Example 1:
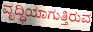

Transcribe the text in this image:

ವೃದ್ಧಿಯಾಗುತ್ತಿರುವ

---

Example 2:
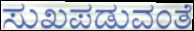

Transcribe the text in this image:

ಸುಖಪಡುವಂತೆ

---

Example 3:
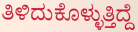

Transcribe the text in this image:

ತಿಳಿದುಕೊಳ್ಳುತ್ತಿದ್ದೆ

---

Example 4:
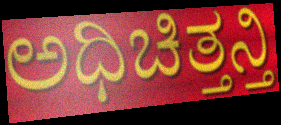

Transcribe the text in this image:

ಅಧಿಚಿತ್ತನ್ತಿ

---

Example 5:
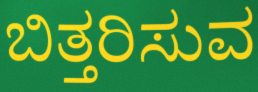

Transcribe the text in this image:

ಬಿತ್ತರಿಸುವ